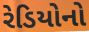
રેડિયોનો